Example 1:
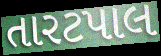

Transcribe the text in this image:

તારટપાલ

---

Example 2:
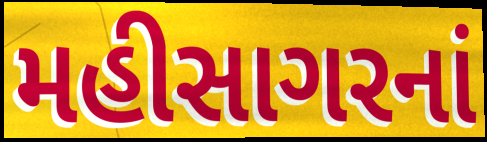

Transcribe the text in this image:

મહીસાગરનાં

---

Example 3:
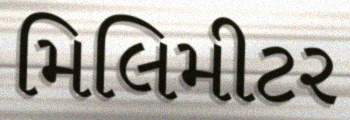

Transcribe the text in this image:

મિલિમીટર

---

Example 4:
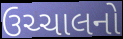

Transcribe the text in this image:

ઉચ્ચાલનો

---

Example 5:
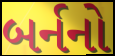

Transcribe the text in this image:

બર્નનો